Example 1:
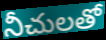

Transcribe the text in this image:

నీచులతో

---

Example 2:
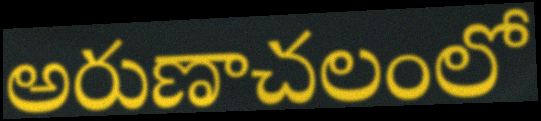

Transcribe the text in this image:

అరుణాచలంలో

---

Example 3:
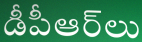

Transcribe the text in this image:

డీపీఆర్‌లు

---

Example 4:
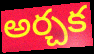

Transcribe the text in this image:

అర్చక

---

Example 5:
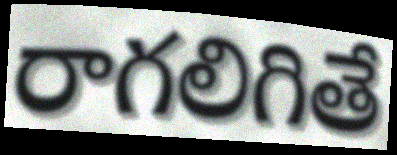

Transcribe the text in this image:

రాగలిగితే